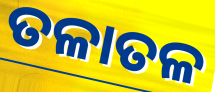
ତଳାତଳ